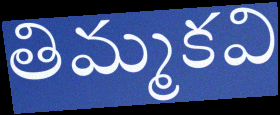
తిమ్మకవి